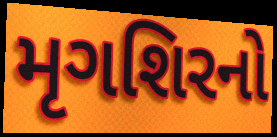
મૃગશિરનો